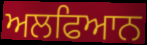
ਅਲਫਿਆਨ